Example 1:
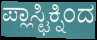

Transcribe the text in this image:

ಪ್ಲಾಸ್ಟಿಕ್ನಿಂದ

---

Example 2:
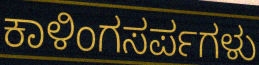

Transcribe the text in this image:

ಕಾಳಿಂಗಸರ್ಪಗಳು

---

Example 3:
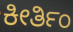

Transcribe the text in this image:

ಕೀರ್ತಿಂ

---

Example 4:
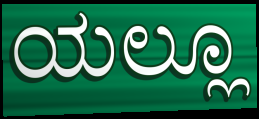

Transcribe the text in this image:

ಯಲ್ಲೂ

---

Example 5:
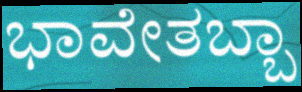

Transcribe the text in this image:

ಭಾವೇತಬ್ಬಾ